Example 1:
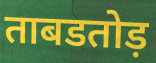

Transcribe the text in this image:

ताबडतोड़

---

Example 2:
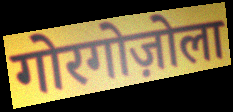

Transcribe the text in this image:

गोरगोज़ोला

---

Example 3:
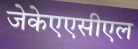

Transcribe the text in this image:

जेकेएएसीएल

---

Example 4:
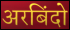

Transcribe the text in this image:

अरबिंदो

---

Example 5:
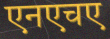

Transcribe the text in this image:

एनएचए